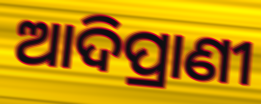
ଆଦିପ୍ରାଣୀ